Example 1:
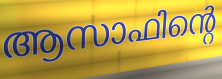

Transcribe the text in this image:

ആസാഫിന്റെ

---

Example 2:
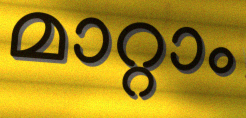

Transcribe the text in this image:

മാറ്റാം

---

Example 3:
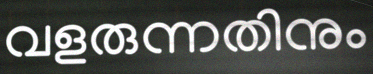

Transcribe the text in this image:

വളരുന്നതിനും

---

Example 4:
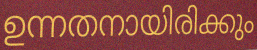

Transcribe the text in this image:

ഉന്നതനായിരിക്കും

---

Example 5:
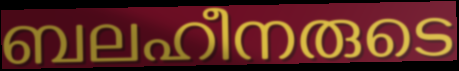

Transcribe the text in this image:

ബലഹീനരുടെ